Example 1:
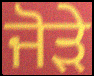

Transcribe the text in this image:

ਜੋਡ਼ੇ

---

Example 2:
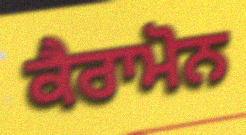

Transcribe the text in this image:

ਕੈਰਾਮੋਨ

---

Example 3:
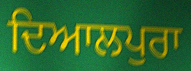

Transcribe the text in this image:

ਦਿਆਲਪੁਰਾ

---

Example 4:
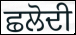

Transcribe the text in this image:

ਛਲੋਦੀ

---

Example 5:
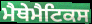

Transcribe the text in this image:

ਮੈਥੇਮੈਟਿਕਸ